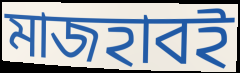
মাজহাবই